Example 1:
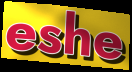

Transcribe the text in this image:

eshe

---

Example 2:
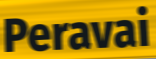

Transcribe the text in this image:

Peravai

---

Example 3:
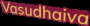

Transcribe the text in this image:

Vasudhaiva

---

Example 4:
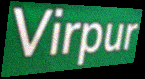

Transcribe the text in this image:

Virpur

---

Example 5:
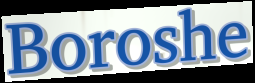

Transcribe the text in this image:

Boroshe